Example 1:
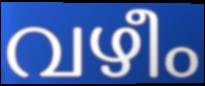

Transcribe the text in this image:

വഴീം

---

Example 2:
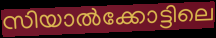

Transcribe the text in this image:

സിയാൽക്കോട്ടിലെ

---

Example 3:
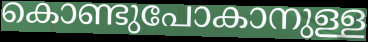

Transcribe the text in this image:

കൊണ്ടുപോകാനുള്ള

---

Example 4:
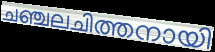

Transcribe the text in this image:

ചഞ്ചലചിത്തനായി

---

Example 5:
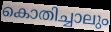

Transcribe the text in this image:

കൊതിച്ചാലും